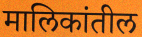
मालिकांतील